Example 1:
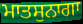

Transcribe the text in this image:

ਮਾਤਸੁਨਾਗਾ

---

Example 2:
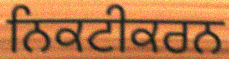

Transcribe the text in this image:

ਨਿਕਟੀਕਰਨ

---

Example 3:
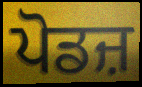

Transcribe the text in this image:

ਪੋਡਜ਼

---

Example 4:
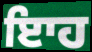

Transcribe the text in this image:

ਇਾਹ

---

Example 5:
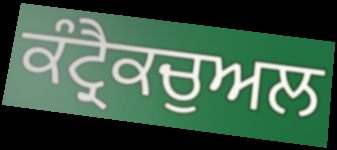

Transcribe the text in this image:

ਕੰਟ੍ਰੈਕਚੁਅਲ